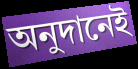
অনুদানেই